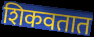
शिकवतात